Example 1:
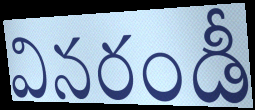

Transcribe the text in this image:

వినరండీ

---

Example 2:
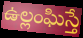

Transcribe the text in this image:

ఉల్లంఘిస్తే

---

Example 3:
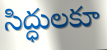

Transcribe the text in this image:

సిద్ధులకూ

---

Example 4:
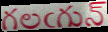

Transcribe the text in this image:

గలఁగున్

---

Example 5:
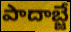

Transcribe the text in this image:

పాదాబ్జే